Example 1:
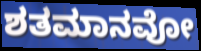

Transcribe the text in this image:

ಶತಮಾನವೋ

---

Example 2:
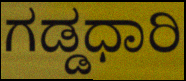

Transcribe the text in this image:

ಗಡ್ಡಧಾರಿ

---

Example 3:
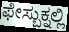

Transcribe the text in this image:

ಫೇಸ್ಬುಕ್ನಲ್ಲಿ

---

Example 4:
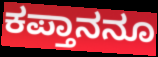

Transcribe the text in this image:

ಕಪ್ತಾನನೂ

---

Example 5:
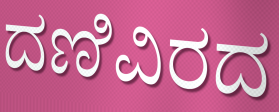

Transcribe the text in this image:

ದಣಿವಿರದ